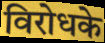
विरोधके